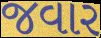
જવાર